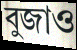
বুজাও